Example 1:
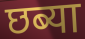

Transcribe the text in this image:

छब्या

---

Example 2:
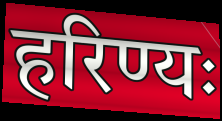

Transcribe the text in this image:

हरिण्यः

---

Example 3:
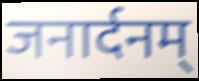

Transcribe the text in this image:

जनार्दनम्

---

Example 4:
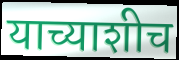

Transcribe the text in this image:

याच्याशीच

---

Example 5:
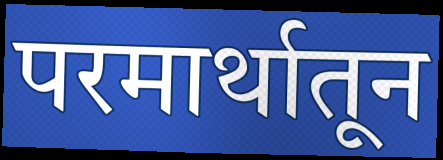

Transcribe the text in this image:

परमार्थातून